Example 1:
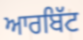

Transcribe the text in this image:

ਆਰਬਿੱਟ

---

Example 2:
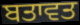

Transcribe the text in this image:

ਬਤਾਵਤ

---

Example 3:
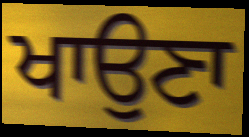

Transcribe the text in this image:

ਖਾਉਣਾ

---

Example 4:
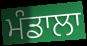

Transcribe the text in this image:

ਮੰਡਾਲਾ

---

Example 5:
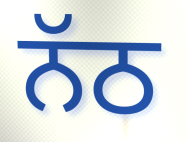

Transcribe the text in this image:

ਨੱਠ